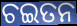
ଚଇତନ